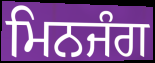
ਮਿਨਜੰਗ